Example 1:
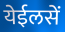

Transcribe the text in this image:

येईलसें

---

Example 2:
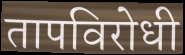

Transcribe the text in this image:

तापविरोधी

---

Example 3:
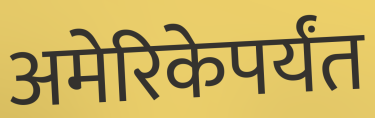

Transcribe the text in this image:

अमेरिकेपर्यंत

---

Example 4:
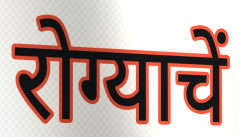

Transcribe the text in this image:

रोग्याचें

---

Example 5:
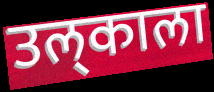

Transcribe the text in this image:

उल्काला